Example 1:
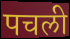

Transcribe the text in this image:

पचली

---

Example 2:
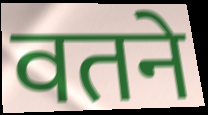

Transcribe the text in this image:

वतने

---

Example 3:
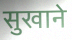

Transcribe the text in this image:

सुखाने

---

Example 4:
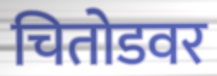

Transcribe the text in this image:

चितोडवर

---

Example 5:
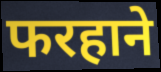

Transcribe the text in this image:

फरहाने